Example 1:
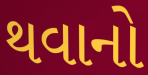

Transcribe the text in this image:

થવાનો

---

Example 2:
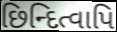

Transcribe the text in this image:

છિન્દિત્વાપિ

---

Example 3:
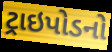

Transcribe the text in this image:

ટ્રાઇપોડનો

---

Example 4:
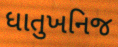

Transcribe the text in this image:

ધાતુખનિજ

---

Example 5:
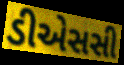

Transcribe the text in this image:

ડીએસસી